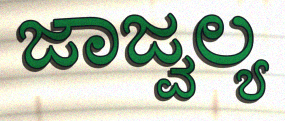
ಜಾಜ್ವಲ್ಯ